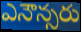
ఎనౌన్సరు